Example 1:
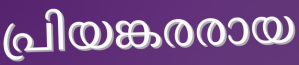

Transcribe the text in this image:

പ്രിയങ്കരരായ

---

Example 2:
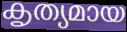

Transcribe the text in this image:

കൃത്യമായ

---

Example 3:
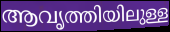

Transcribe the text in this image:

ആവൃത്തിയിലുള്ള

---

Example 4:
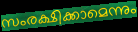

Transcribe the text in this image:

സംരക്ഷിക്കാമെന്നും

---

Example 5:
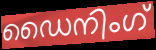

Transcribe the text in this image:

ഡൈനിംഗ്